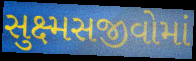
સુક્ષ્મસજીવોમાં